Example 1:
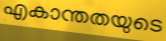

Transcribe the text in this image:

എകാന്തതയുടെ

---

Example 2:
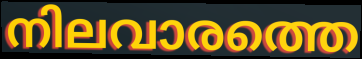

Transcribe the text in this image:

നിലവാരത്തെ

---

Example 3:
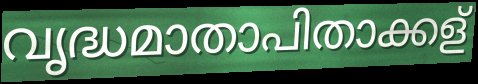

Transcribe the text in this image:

വൃദ്ധമാതാപിതാക്കള്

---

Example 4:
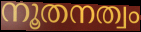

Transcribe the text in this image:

നൂതനത്വം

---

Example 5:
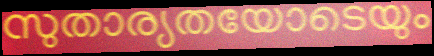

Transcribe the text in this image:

സുതാര്യതയോടെയും